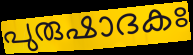
പുരുഷാദകഃ